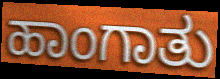
ಹಾಂಗಾತು